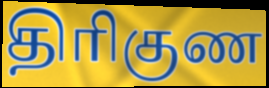
திரிகுண